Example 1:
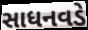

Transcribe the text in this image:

સાધનવડે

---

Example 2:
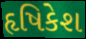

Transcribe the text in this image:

હૃષિકેશ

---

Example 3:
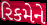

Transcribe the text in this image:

રિકમેને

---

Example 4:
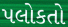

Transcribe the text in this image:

પલોકતો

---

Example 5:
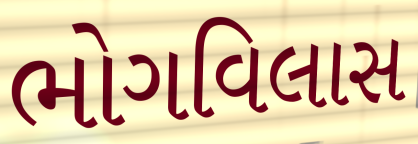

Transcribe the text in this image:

ભોગવિલાસ